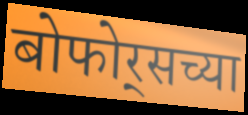
बोफोर्सच्या